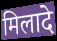
मिलादे